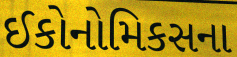
ઈકોનોમિકસના